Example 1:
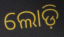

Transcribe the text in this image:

ଲୋଡ଼ି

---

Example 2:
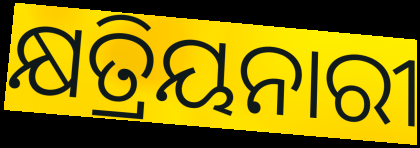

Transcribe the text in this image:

କ୍ଷତ୍ରିୟନାରୀ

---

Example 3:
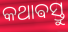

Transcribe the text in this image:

କଥାଵସ୍ତୁ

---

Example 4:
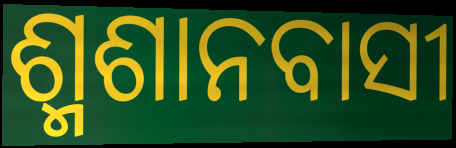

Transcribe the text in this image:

ଶ୍ମଶାନବାସୀ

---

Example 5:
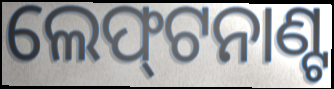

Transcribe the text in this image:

ଲେଫ୍‌ଟନାଣ୍ଟ